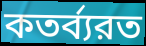
কতর্ব্যরত